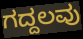
ಗದ್ದಲವು